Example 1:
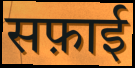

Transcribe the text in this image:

सफ़ाई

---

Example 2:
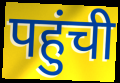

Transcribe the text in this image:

पहुंची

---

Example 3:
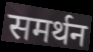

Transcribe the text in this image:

समर्थन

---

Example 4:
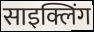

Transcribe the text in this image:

साइक्लिंग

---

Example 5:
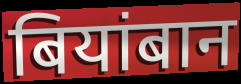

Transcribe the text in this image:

बियांबान